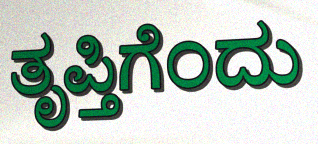
ತೃಪ್ತಿಗೆಂದು